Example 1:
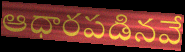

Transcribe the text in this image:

ఆధారపడినవే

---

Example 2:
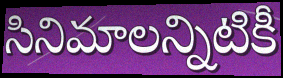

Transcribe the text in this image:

సినిమాలన్నిటికీ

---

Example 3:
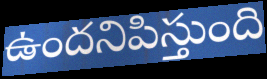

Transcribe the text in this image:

ఉందనిపిస్తుంది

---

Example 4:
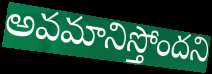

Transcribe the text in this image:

అవమానిస్తోందని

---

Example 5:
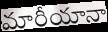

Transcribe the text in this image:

మారీయానా